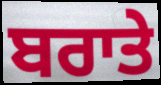
ਬਰਾਤੇ